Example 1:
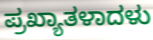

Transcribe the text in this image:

ಪ್ರಖ್ಯಾತಳಾದಳು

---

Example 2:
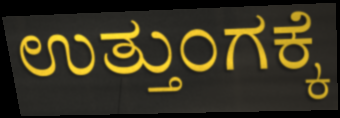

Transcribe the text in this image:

ಉತ್ತುಂಗಕ್ಕೆ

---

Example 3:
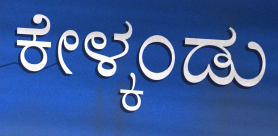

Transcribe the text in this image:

ಕೇಳ್ಕಂಡು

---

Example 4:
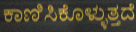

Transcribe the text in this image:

ಕಾಣಿಸಿಕೊಳ್ಳುತ್ತದೆ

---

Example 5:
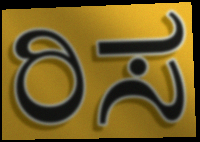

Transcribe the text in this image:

ರಿಸ